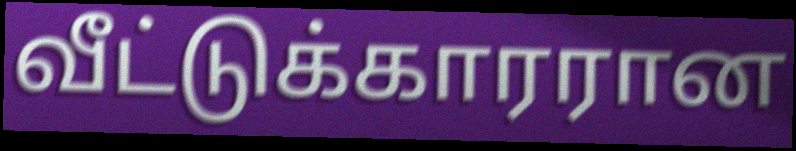
வீட்டுக்காரரான